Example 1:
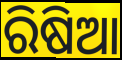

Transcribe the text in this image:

ରିଷିଆ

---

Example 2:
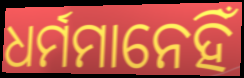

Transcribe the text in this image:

ଧର୍ମମାନେହିଁ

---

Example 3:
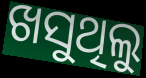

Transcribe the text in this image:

ଖସୁଥିଲୁ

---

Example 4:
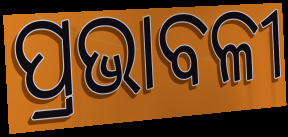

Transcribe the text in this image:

ପ୍ରଭାବଳୀ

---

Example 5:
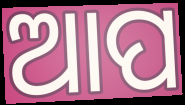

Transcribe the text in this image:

ଆପ